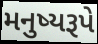
મનુષ્યરૂપે